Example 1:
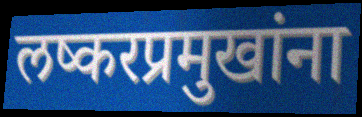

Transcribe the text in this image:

लष्करप्रमुखांना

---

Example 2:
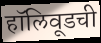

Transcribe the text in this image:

हॉलिवूडची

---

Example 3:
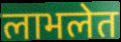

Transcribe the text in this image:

लाभलेत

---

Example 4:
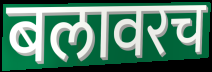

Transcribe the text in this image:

बलावरच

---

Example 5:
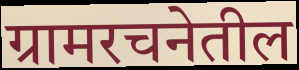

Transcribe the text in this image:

ग्रामरचनेतील